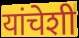
यांचेशी